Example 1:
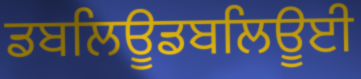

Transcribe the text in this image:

ਡਬਲਿਊਡਬਲਿਊਈ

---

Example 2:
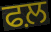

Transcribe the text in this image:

ਫਲ਼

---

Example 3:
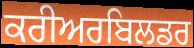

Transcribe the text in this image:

ਕਰੀਅਰਬਿਲਡਰ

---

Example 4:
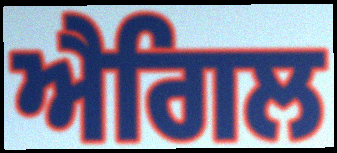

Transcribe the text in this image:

ਐਗਿਲ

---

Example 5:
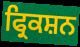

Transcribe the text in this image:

ਫ੍ਰਿਕਸ਼ਨ